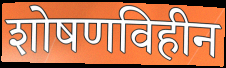
शोषणविहीन